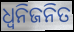
ଧ୍ଵନିଜନିତ